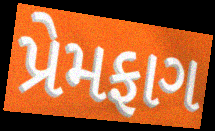
પ્રેમફાગ